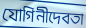
যোগিনীদেবতা